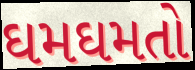
ઘમઘમતો